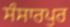
ਸੰਸਾਰਪੁਰ